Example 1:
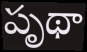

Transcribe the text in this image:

పృథా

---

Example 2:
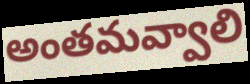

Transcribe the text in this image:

అంతమవ్వాలి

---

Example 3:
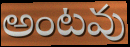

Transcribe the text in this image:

అంటవు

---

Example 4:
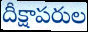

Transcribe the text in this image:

దీక్షాపరుల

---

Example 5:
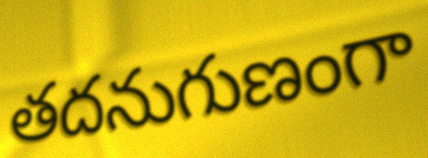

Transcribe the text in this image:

తదనుగుణంగా